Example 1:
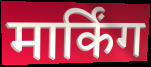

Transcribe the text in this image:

मार्किंग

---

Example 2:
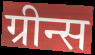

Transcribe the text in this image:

ग्रीन्स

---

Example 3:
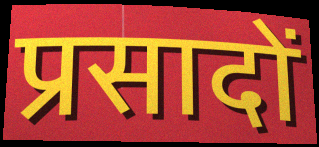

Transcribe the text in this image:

प्रसादों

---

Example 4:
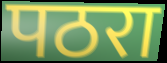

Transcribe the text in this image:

पठरा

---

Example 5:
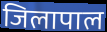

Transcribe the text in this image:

जिलापाल